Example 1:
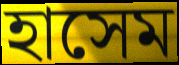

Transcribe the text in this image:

হাসেম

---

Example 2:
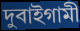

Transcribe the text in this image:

দুবাইগামী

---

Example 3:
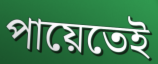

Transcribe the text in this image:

পায়েতেই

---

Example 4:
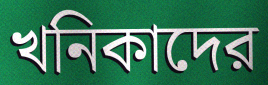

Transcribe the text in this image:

খনিকাদের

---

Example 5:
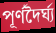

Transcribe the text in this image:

পূর্ণদৈর্ঘ্য